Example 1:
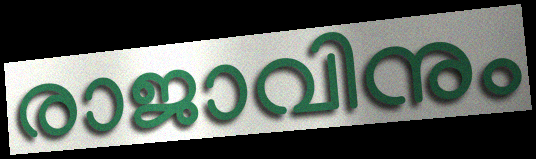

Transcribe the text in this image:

രാജാവിനും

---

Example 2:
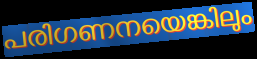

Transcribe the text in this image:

പരിഗണനയെങ്കിലും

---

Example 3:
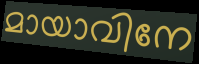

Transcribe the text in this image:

മായാവിനേ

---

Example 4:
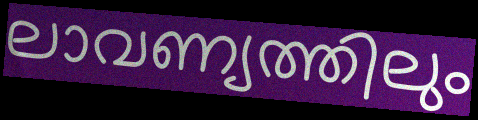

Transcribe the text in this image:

ലാവണ്യത്തിലും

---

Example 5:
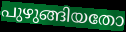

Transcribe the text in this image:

പുഴുങ്ങിയതോ